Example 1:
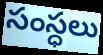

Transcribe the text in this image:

సంస్ధలు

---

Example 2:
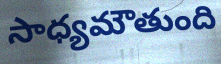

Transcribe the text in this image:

సాధ్యమౌతుంది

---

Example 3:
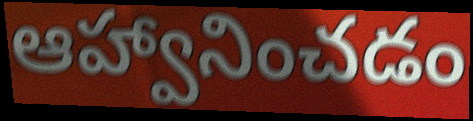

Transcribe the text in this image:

ఆహ్వానించడం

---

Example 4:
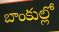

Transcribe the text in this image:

బాంకుల్లో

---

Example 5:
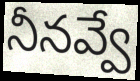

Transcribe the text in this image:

నీనవ్వే